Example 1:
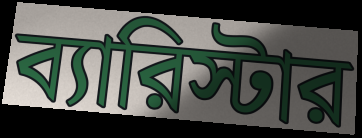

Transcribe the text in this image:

ব্যারিস্টার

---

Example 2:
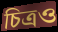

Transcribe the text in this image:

চিত্রও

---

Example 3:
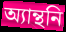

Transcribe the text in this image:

অ্যান্থনি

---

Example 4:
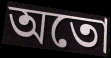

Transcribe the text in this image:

অতো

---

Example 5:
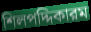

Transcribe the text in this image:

শিলপদ্দিকারম